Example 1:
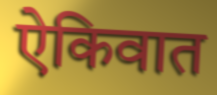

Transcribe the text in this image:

ऐकिवात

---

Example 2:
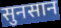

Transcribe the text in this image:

सुनसान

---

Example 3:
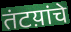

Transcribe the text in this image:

तंटय़ांचे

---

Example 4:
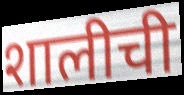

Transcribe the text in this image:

शालीची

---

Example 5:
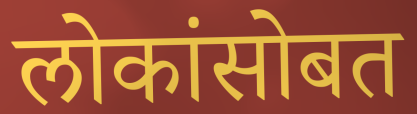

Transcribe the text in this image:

लोकांसोबत